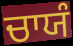
ਚਾਯੰ